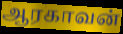
ஆரகாவன்